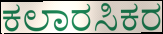
ಕಲಾರಸಿಕರ